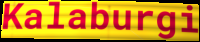
Kalaburgi